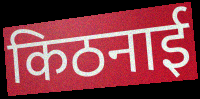
किठनाई